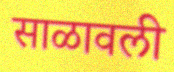
साळावली